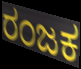
ರಂಜಕ